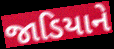
જાડિયાને